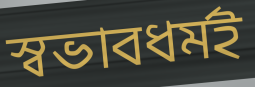
স্বভাবধর্মই